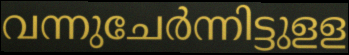
വന്നുചേർന്നിട്ടുളള